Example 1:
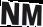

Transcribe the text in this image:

NM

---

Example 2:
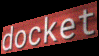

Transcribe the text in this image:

docket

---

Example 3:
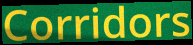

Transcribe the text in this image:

Corridors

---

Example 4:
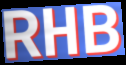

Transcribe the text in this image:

RHB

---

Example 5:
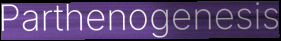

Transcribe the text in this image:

Parthenogenesis